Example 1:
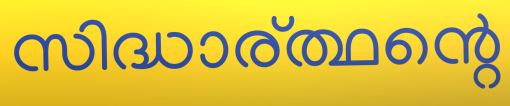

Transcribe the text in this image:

സിദ്ധാര്ത്ഥന്റെ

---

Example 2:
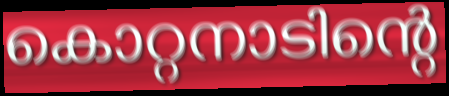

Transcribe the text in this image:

കൊറ്റനാടിന്റെ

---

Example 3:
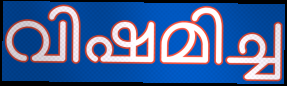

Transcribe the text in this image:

വിഷമിച്ച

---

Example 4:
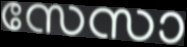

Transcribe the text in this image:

സേസാ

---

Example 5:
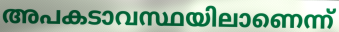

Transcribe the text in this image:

അപകടാവസ്ഥയിലാണെന്ന്